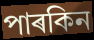
পাৰকিন